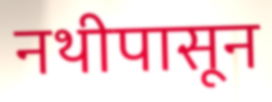
नथीपासून